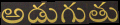
అడుగుతు